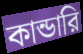
কান্ডারি